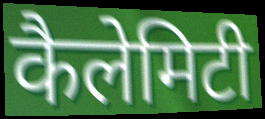
कैलेमिटी